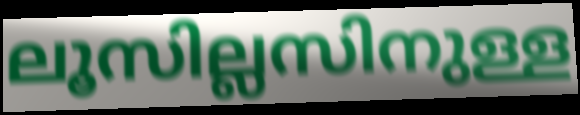
ലൂസില്ലസിനുള്ള